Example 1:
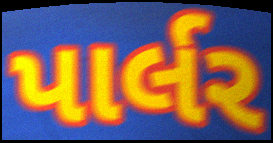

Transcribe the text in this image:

પાર્લર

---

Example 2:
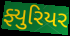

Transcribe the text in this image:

ફ્યુરિયર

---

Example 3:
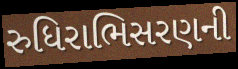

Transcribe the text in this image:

રુધિરાભિસરણની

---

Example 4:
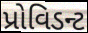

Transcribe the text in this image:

પ્રોવિડન્ટ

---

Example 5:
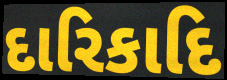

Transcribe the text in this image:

દારિકાદિ